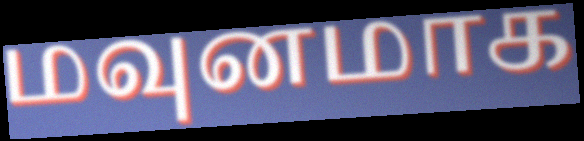
மவுனமாக